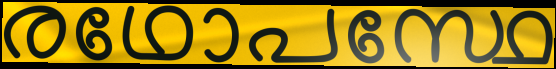
രഥോപസ്ഥേ